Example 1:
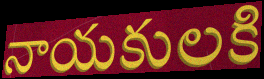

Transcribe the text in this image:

నాయకులకి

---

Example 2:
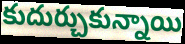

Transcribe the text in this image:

కుదుర్చుకున్నాయి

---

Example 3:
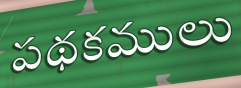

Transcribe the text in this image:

పథకములు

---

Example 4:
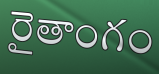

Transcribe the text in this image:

రైతాంగం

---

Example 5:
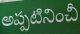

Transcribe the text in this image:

అప్పటినించీ